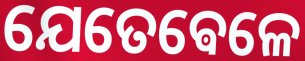
ଯେତେଵେଳେ